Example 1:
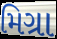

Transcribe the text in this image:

મિગ્રા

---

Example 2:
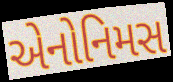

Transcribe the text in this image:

એનોનિમસ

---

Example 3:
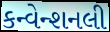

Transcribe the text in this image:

કન્વેન્શનલી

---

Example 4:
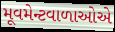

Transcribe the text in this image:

મૂવમેન્ટવાળાઓએ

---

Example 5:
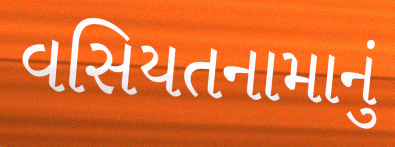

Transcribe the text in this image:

વસિયતનામાનું